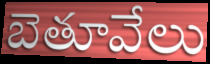
బెతూవేలు